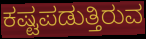
ಕಷ್ಟಪಡುತ್ತಿರುವ